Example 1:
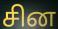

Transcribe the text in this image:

சின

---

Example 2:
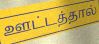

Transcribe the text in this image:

ஊட்டத்தால்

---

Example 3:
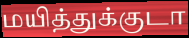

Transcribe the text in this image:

மயித்துக்குடா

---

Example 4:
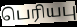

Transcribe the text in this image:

பெரியபு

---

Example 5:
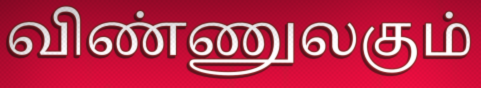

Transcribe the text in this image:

விண்ணுலகும்